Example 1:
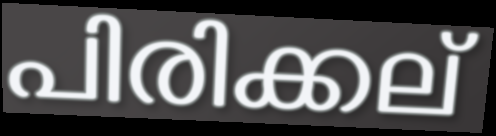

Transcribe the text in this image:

പിരിക്കല്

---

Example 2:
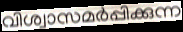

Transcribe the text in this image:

വിശ്വാസമർപ്പിക്കുന്ന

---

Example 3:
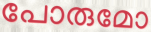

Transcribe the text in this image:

പോരുമോ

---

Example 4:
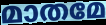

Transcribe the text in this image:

മാതമേ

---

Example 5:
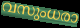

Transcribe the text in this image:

വസുംധരാ